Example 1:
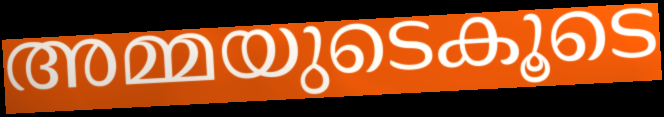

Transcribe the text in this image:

അമ്മയുടെകൂടെ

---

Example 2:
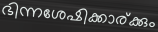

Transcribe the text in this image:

ഭിന്നശേഷിക്കാര്ക്കും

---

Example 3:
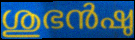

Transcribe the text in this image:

ശുഭൻഷു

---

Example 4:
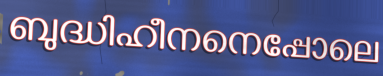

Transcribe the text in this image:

ബുദ്ധിഹീനനെപ്പോലെ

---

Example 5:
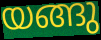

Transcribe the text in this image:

യങ്ങു